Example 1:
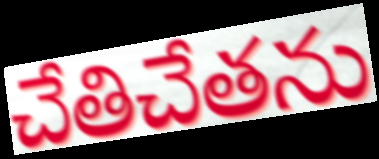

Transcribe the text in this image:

చేతిచేతను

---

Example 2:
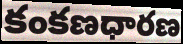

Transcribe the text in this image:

కంకణధారణ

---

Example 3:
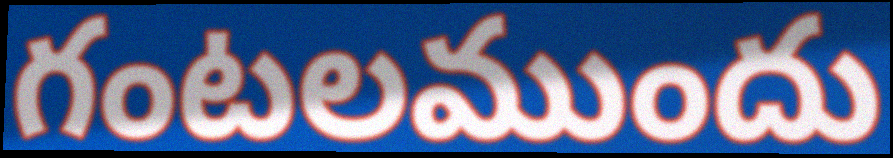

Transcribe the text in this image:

గంటలముందు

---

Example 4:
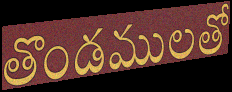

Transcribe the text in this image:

తొండములతో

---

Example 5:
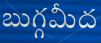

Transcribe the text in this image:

బుగ్గమీద